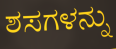
ಶಸಗಳನ್ನು